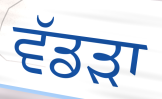
ਵੱਡਡ਼ਾ